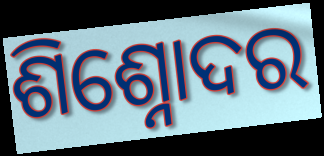
ଶିଶ୍ନୋଦର